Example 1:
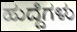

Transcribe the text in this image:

ಹುದ್ದೆಗಳು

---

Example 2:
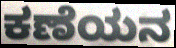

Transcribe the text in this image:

ಕಣೆಯನ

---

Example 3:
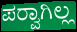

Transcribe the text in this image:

ಪರ‍್ವಾಗಿಲ್ಲ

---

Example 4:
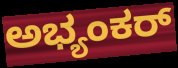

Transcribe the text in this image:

ಅಭ್ಯಂಕರ್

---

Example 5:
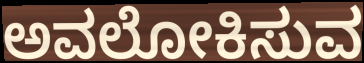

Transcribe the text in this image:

ಅವಲೋಕಿಸುವ